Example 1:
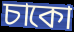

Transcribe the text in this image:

চাকো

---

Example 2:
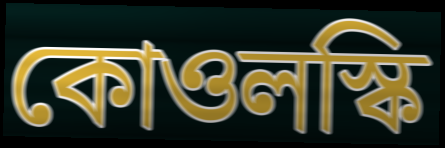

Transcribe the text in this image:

কোওলস্কি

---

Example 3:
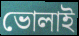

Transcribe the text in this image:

ভোলাই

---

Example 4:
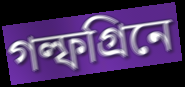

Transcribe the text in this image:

গল্ফগ্রিনে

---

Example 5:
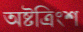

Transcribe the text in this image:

অষ্টত্রিংশ